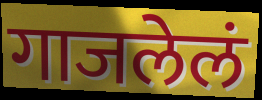
गाजलेलं